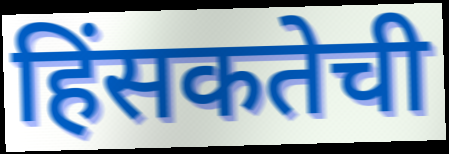
हिंसकतेची